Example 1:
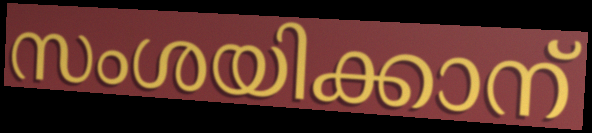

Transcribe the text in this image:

സംശയിക്കാന്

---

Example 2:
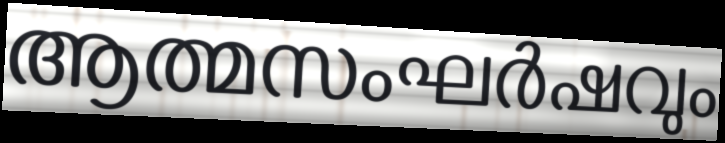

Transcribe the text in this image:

ആത്മസംഘർഷവും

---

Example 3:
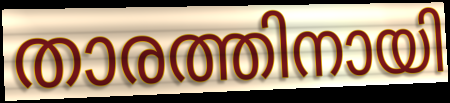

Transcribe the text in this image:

താരത്തിനായി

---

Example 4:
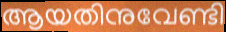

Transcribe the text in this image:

ആയതിനുവേണ്ടി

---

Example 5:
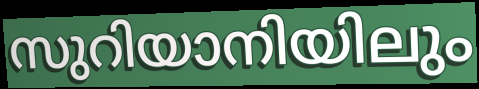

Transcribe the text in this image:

സുറിയാനിയിലും